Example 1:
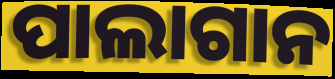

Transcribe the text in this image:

ପାଲାଗାନ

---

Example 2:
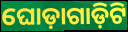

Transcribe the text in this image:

ଘୋଡ଼ାଗାଡ଼ିଟି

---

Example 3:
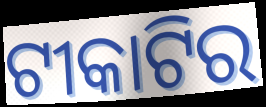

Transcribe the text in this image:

ଟୀକାଟିର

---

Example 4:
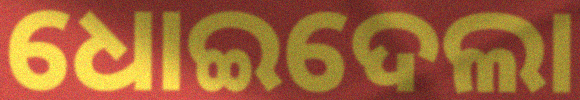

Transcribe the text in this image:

ଧୋଇଦେଲା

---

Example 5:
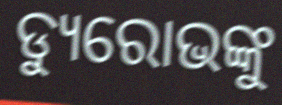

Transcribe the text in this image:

ଡ୍ୟୁରୋଭଙ୍କୁ